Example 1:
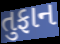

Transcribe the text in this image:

તુફાન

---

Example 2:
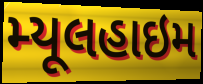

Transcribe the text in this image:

મ્યૂલહાઇમ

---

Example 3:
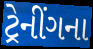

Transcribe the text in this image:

ટ્રેનીંગના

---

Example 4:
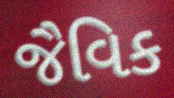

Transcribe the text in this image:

જૈવિક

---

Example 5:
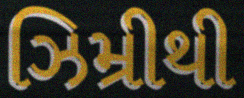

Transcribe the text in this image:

ઝિમ્રીથી